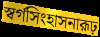
স্বর্গসিংহাসনারূঢ়